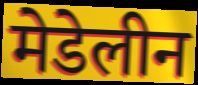
मेडेलीन